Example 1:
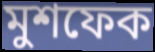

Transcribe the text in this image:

মুশফেক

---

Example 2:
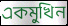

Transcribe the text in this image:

একমুখিন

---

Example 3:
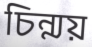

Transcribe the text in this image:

চিন্ময়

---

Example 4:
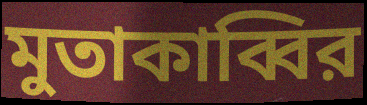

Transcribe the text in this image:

মুতাকাব্বির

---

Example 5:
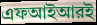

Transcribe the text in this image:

এফআইআরই